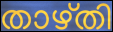
താഴ്തി